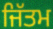
ਜਿੱਤਮ